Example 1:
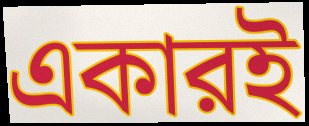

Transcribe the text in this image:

একারই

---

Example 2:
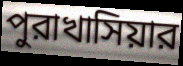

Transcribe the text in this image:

পুরাখাসিয়ার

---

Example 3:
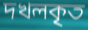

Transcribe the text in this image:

দখলকৃত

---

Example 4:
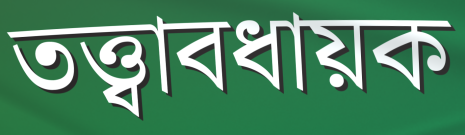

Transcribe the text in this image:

তত্ত্বাবধায়ক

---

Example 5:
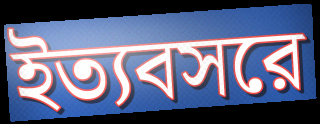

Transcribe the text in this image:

ইত্যবসরে